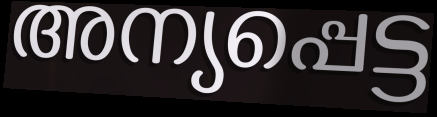
അന്യപ്പെട്ട